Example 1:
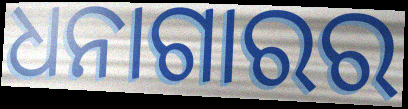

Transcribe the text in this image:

ଧନାଗାରର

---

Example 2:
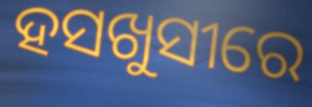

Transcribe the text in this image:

ହସଖୁସୀରେ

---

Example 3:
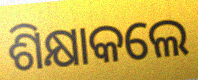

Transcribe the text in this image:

ଶିକ୍ଷାକଲେ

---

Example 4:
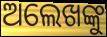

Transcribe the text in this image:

ଅଲେଖଙ୍କୁ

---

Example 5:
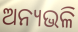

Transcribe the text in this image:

ଅନ୍ୟଭଳି